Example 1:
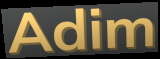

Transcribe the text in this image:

Adim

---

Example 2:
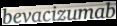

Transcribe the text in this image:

bevacizumab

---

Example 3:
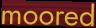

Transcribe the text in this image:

moored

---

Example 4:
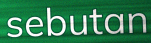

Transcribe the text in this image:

sebutan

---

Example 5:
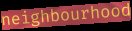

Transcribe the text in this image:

neighbourhood